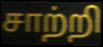
சாற்றி